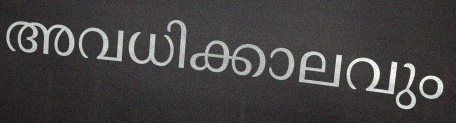
അവധിക്കാലവും